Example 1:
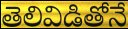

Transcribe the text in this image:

తెలివిడితోనే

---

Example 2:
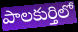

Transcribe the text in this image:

పాలకుర్తిలో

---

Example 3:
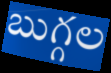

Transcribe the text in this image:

బుగ్గల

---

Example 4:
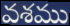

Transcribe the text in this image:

వశము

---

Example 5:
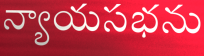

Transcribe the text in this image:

న్యాయసభను